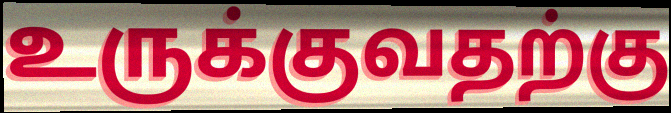
உருக்குவதற்கு